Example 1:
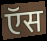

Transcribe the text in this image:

ऍस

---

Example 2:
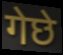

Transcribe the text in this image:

गेछे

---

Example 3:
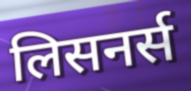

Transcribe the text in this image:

लिसनर्स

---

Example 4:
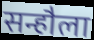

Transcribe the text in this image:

सन्हौला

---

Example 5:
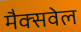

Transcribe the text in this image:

मैक्‍सवेल